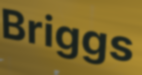
Briggs